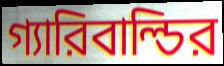
গ্যারিবাল্ডির